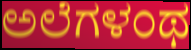
ಅಲೆಗಳಂಥ